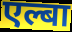
एल्बा